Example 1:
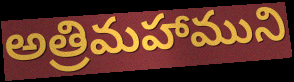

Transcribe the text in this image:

అత్రిమహాముని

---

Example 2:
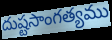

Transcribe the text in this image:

దుష్టసాంగత్యము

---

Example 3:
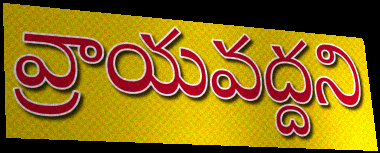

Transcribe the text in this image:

వ్రాయవద్దని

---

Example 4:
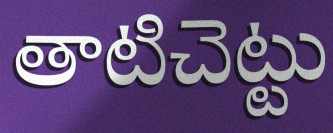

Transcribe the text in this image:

తాటిచెట్టు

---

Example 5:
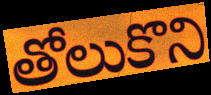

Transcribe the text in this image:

తోలుకొని